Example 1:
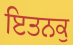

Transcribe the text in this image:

ਇਤਨਕੁ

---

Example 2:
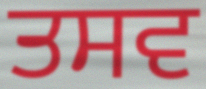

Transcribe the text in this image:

ਤਸਵ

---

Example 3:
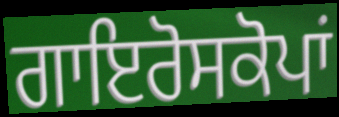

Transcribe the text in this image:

ਗਾਇਰੋਸਕੋਪਾਂ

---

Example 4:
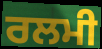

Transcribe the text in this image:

ਰਲਮੀ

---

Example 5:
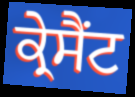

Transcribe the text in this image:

ਕ੍ਰੇਸੈਂਟ